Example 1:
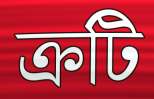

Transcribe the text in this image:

ক্রটি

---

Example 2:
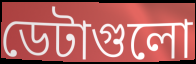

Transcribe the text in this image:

ডেটাগুলো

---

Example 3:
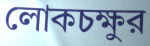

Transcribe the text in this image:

লোকচক্ষুর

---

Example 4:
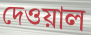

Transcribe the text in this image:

দেওয়াল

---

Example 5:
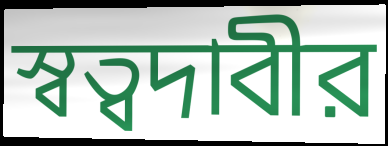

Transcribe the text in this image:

স্বত্বদাবীর